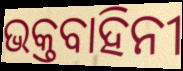
ଭକ୍ତବାହିନୀ